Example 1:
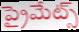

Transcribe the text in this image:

ప్రైమేట్స్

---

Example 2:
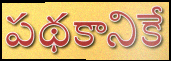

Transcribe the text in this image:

పథకానికే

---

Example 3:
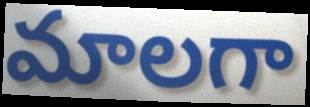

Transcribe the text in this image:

మాలగా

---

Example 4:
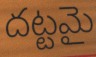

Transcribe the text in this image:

దట్టమై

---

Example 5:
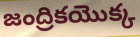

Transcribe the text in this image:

జంద్రికయొక్క